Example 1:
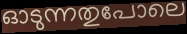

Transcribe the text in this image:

ഓടുന്നതുപോലെ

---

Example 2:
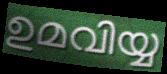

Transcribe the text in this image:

ഉമവിയ്യ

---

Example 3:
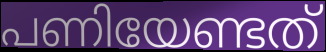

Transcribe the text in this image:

പണിയേണ്ടത്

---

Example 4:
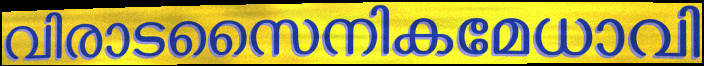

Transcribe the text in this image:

വിരാടസൈനികമേധാവി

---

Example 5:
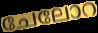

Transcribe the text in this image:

ചേലോറ